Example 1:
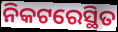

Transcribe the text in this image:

ନିକଟରେସ୍ଥିତ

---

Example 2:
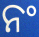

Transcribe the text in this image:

ନଂ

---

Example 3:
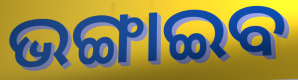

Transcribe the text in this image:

ଭଙ୍ଗାଇବ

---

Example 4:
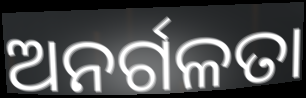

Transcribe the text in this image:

ଅନର୍ଗଳତା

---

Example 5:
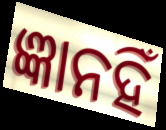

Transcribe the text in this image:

ଜ୍ଞାନହିଁ